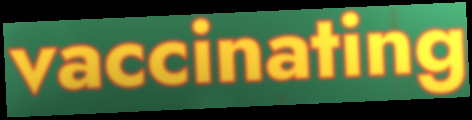
vaccinating